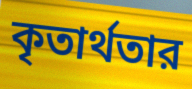
কৃতার্থতার